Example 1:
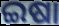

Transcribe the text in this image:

ଇଷା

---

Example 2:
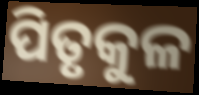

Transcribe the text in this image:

ପିତୃକୁଳ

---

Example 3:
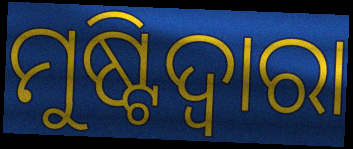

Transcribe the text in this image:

ମୁଷ୍ଟିଦ୍ୱାରା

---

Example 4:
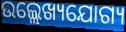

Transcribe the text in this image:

ଉଲ୍ଲେଖ୍ୟଯୋଗ୍ୟ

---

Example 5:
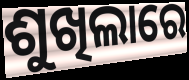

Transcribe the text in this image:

ଶୁଖିଲାରେ